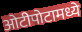
ओटीपोटामध्ये